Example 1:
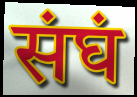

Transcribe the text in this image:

संघं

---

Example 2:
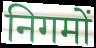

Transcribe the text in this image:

निगमों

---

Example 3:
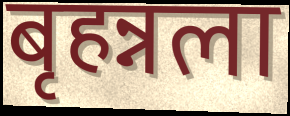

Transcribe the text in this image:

बृहन्नला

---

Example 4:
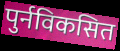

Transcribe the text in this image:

पुर्नविकसित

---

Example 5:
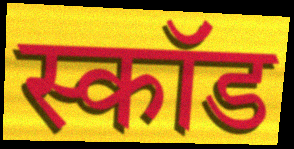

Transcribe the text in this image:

स्कॉड